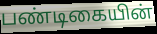
பண்டிகையின்